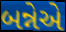
બન્નેએ